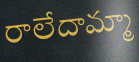
రాలేదామ్మా